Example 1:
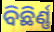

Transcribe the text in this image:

ବିଛିର୍ଣ୍ଣ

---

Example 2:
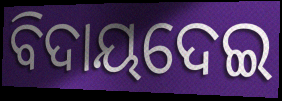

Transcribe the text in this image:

ବିଦାୟଦେଇ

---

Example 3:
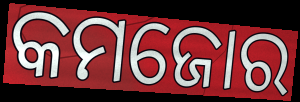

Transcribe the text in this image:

କମଜୋର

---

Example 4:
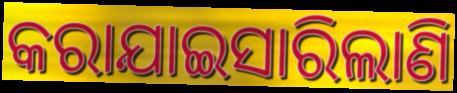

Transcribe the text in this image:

କରାଯାଇସାରିଲାଣି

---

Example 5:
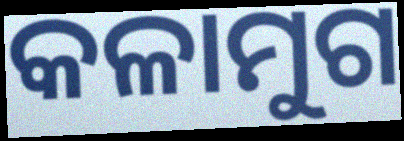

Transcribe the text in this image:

କଳାମୁଗ